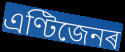
এণ্টিজেনৰ